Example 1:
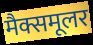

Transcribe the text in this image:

मैक्समूलर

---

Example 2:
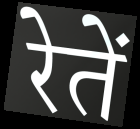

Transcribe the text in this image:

रेतें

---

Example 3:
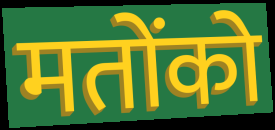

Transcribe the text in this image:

मतोंको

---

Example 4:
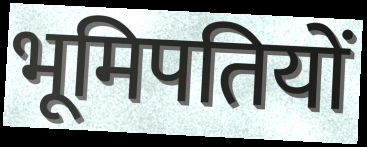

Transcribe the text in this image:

भूमिपतियों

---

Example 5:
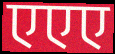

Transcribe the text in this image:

एएए